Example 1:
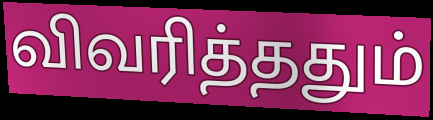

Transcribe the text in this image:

விவரித்ததும்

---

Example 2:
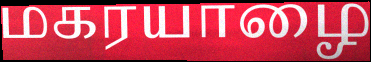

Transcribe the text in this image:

மகரயாழை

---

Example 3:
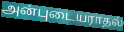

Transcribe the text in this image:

அன்புடையராதல்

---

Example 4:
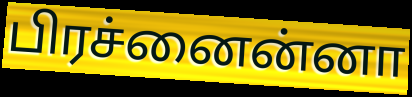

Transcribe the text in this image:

பிரச்னைன்னா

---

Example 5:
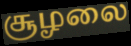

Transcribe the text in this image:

சூழலை